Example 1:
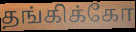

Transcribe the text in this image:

தங்கிக்கோ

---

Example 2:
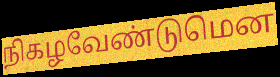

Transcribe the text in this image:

நிகழவேண்டுமென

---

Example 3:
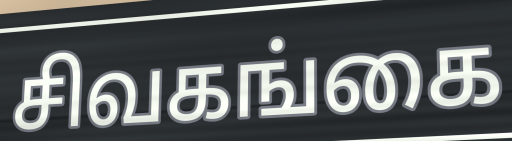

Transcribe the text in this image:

சிவகங்கை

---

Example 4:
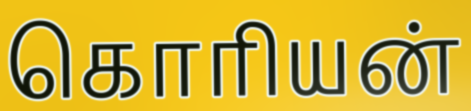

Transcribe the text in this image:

கொரியன்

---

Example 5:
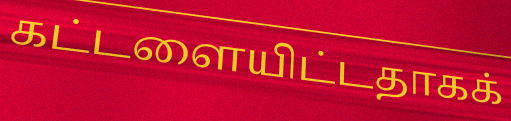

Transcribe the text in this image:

கட்டளையிட்டதாகக்